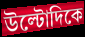
উল্টোদিকে